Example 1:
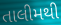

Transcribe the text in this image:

તાલીમથી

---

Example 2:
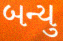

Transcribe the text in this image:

બન્યુ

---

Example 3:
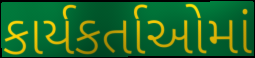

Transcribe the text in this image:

કાર્યકર્તાઓમાં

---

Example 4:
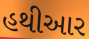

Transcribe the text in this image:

હથીઆર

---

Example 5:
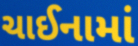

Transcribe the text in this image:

ચાઈનામાં